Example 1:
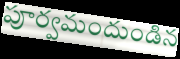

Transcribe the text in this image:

పూర్వమందుండిన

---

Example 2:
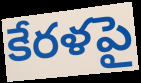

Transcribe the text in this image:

కేరళపై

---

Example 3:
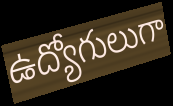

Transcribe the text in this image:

ఉద్యోగులుగా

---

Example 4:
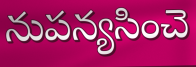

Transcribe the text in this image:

నుపన్యసించె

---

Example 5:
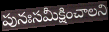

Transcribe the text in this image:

పునఃసమీక్షించాలని